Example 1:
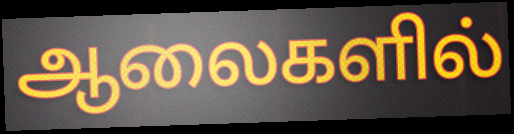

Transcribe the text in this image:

ஆலைகளில்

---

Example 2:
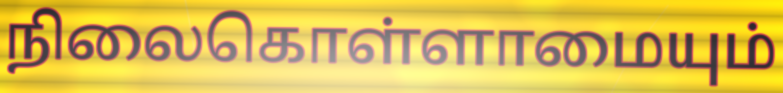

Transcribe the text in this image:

நிலைகொள்ளாமையும்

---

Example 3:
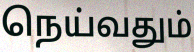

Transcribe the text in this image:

நெய்வதும்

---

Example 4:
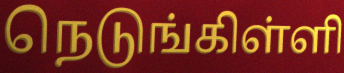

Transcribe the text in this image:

நெடுங்கிள்ளி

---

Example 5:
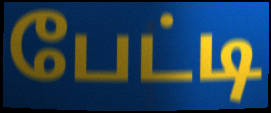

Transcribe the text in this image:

பேட்டி